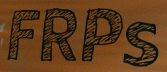
FRPs